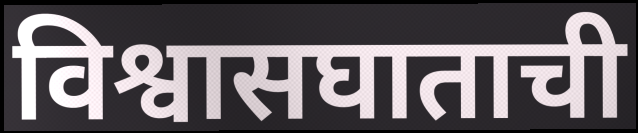
विश्वासघाताची